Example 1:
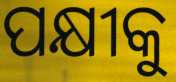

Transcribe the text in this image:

ପକ୍ଷୀକୁ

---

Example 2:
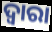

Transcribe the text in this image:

ଦ୍ବାରା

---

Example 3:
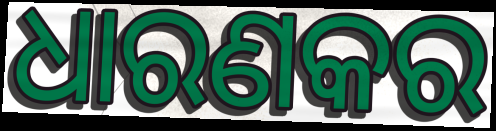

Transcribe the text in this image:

ଧାରଣକର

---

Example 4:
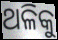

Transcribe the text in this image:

ଥଳିକୁ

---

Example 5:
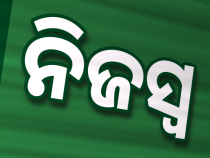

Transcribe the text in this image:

ନିଜସ୍ୱ